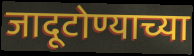
जादूटोण्याच्या